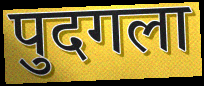
पुदगला